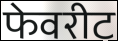
फेवरीट